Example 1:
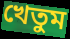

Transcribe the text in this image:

খেতুম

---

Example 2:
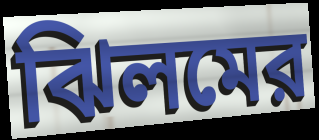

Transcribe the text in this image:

ঝিলমের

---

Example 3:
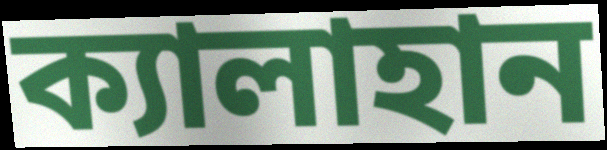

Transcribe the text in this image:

ক্যালাহান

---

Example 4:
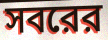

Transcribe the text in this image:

সবরের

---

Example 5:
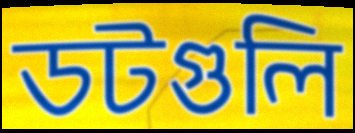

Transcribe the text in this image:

ডটগুলি